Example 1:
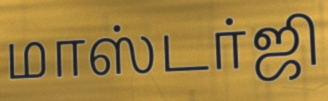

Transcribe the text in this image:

மாஸ்டர்ஜி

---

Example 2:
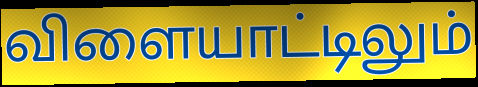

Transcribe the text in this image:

விளையாட்டிலும்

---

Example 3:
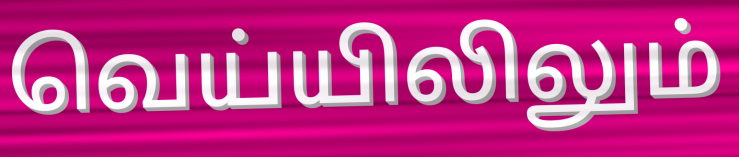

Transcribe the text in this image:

வெய்யிலிலும்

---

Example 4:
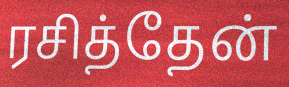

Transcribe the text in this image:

ரசித்தேன்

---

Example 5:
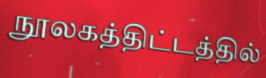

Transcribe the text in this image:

நூலகத்திட்டத்தில்